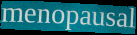
menopausal